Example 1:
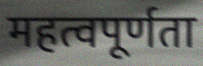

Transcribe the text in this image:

महत्वपूर्णता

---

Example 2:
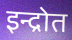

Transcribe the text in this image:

इन्द्रोत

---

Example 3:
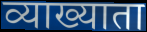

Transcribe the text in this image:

व्याख्याता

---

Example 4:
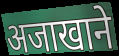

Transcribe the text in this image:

अजाखाने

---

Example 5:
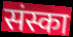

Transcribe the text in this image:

संस्का